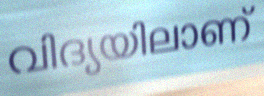
വിദ്യയിലാണ്